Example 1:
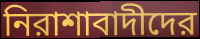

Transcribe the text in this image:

নিরাশাবাদীদের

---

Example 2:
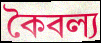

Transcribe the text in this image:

কৈবল্য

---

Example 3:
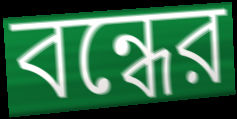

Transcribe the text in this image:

বন্ধের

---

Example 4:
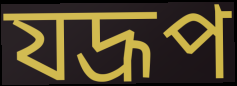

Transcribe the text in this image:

যদ্রূপ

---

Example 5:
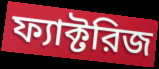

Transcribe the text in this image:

ফ্যাক্টরিজ